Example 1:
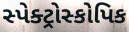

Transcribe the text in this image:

સ્પેક્ટ્રોસ્કોપિક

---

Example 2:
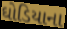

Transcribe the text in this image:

ઘોડિયાના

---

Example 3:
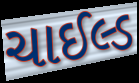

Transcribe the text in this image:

ચાઈલ્ડ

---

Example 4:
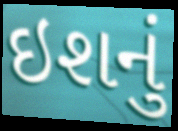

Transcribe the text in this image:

ઇશનું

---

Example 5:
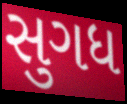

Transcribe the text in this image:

સુગધ